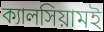
ক্যালসিয়ামই